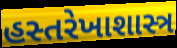
હસ્તરેખાશાસ્ત્ર